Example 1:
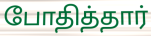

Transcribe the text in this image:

போதித்தார்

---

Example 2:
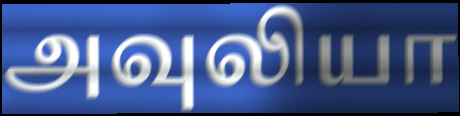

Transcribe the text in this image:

அவுலியா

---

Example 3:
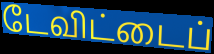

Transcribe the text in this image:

டேவிட்டைப்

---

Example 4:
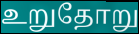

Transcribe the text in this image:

உறுதோறு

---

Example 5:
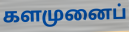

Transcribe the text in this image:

களமுனைப்